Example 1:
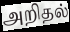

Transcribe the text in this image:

அறிதல்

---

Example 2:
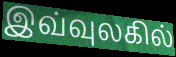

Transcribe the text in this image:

இவ்வுலகில்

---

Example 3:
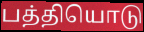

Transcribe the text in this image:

பத்தியொடு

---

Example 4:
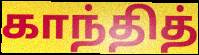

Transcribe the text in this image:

காந்தித்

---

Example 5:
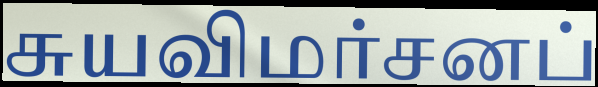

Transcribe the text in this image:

சுயவிமர்சனப்